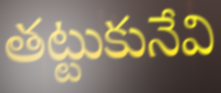
తట్టుకునేవి